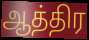
ஆத்திர